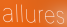
allures